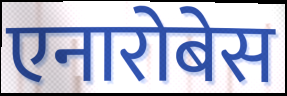
एनारोबेस